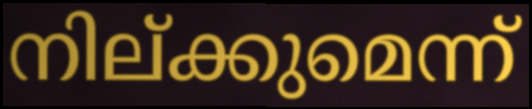
നില്ക്കുമെന്ന്